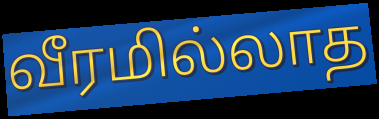
வீரமில்லாத